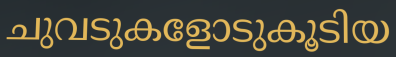
ചുവടുകളോടുകൂടിയ